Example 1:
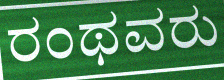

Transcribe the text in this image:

ರಂಥವರು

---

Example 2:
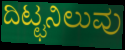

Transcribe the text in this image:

ದಿಟ್ಟನಿಲುವು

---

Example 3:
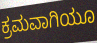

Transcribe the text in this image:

ಕ್ರಮವಾಗಿಯೂ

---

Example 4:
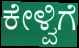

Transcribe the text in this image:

ಕೇಳ್ವಿಗೆ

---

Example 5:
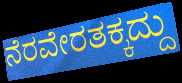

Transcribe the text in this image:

ನೆರವೇರತಕ್ಕದ್ದು